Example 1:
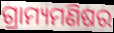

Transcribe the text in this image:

ଗ୍ରାମ୍ୟମଣିଷର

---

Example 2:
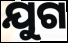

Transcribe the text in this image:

ଯୁଗ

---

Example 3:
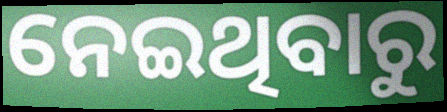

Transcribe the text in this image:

ନେଇଥିବାରୁ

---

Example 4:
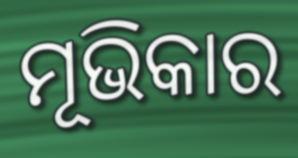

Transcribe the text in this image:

ମୂଭିକାର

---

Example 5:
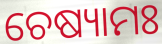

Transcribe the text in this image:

ଚେଷ୍ୟାମଃ